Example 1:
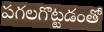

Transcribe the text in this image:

పగలగొట్టడంతో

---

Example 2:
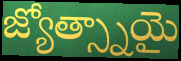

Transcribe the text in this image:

జ్యోత్స్నాయై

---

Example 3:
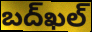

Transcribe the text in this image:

బద్‌ఖల్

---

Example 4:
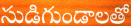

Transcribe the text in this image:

సుడిగుండాలతో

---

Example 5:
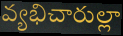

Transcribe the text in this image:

వ్యభిచారుల్లా